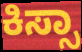
ಕಿಸ್ಸಾ